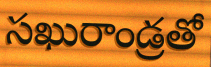
సఖురాండ్రతో